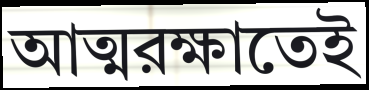
আত্মরক্ষাতেই